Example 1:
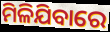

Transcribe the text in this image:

ମିଳିଯିବାରେ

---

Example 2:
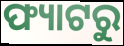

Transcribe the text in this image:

ଫ୍ୟାଟରୁ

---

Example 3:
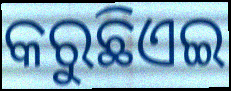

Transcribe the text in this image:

କରୁଛିଏଇ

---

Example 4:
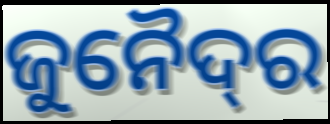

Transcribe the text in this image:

ଜୁନୈଦ୍‌ର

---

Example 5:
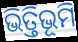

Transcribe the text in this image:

ଭିତ୍ତିଭୂମି